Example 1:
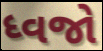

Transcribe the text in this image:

ધ્વજો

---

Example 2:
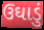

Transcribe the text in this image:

ઉઘાડું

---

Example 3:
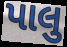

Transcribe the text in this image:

પાલુ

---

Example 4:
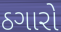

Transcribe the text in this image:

ઠગારો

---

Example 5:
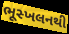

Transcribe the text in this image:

ભૂસ્ખલનથી